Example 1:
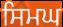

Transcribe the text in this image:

ਸਿਮਘ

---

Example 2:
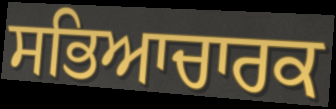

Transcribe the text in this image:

ਸਭਿਆਚਾਰਕ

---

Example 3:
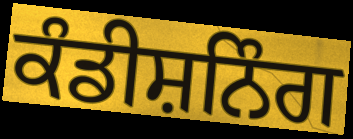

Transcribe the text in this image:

ਕੰਡੀਸ਼ਨਿੰਗ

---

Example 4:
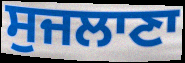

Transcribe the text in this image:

ਸੁਜਲਾਣਾ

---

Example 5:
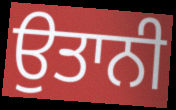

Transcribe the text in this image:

ਉਤਾਨੀ